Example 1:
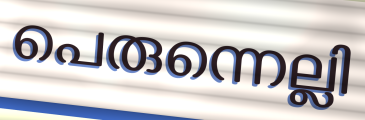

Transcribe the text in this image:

പെരുന്നെല്ലി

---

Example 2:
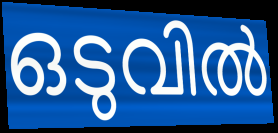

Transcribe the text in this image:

ഒടുവിൽ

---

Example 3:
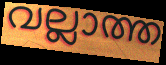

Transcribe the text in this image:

വല്ലാത്ത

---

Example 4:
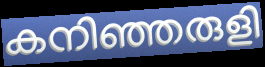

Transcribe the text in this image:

കനിഞ്ഞരുളി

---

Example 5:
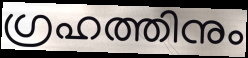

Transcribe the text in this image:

ഗ്രഹത്തിനും